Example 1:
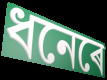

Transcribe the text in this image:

ধনেৰে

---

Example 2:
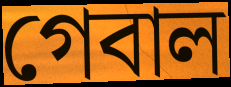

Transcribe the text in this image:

গেবাল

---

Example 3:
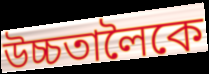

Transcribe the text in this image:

উচ্চতালৈকে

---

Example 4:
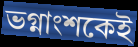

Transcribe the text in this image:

ভগ্নাংশকেই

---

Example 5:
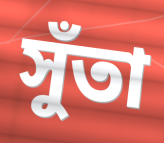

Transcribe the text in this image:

সুঁতা